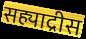
सह्याद्रीस